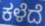
ಕಳೆದೆ